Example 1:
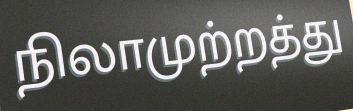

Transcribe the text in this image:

நிலாமுற்றத்து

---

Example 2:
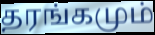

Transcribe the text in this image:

தரங்கமும்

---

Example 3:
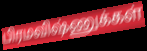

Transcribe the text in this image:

பிரமவிஷ்ணுக்கள்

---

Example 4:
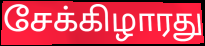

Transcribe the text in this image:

சேக்கிழாரது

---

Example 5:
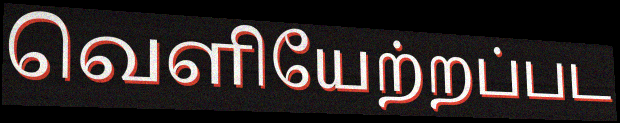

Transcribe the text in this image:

வெளியேற்றப்பட